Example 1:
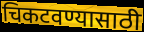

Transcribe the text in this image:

चिकटवण्यासाठी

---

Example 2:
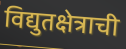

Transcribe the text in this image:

विद्युतक्षेत्राची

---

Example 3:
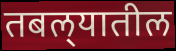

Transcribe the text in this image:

तबल्यातील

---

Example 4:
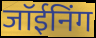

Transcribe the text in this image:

जॉईनिंग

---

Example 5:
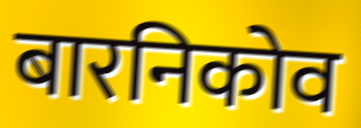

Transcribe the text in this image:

बारनिकोव